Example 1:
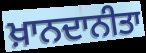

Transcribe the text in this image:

ਖ਼ਾਨਦਾਨੀਤਾ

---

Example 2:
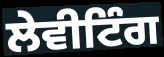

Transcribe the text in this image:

ਲੇਵੀਟਿੰਗ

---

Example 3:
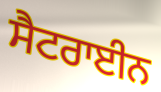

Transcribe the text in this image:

ਸੈਟਰਾਈਨ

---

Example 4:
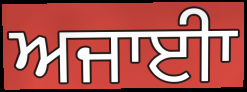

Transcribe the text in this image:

ਅਜਾਈਾ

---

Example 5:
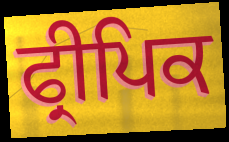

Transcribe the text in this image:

ਫ੍ਰੀਪਿਕ